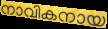
നാവികനായ